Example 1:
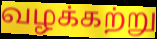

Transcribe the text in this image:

வழக்கற்று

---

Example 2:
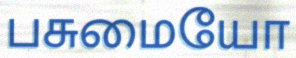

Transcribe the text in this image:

பசுமையோ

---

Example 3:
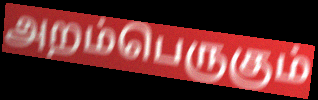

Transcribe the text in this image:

அறம்பெருகும்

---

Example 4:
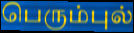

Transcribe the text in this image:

பெரும்புல்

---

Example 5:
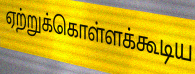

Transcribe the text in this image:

ஏற்றுக்கொள்ளக்கூடிய